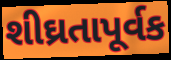
શીઘ્રતાપૂર્વક